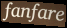
fanfare